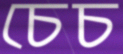
চেচ